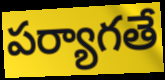
పర్యాగతే